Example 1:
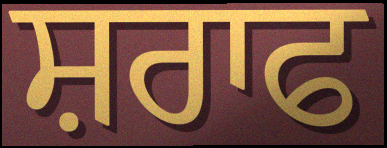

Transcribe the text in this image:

ਸ਼ਰਾਫ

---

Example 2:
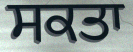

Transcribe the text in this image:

ਸਕਤਾ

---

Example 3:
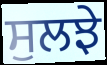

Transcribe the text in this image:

ਸੁਲਝੇ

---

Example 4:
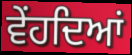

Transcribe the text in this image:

ਵੇਂਹਦਿਆਂ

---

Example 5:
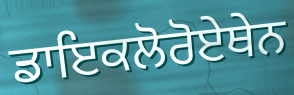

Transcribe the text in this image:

ਡਾਇਕਲੋਰੋਏਥੇਨ